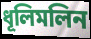
ধূলিমলিন